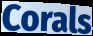
Corals